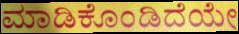
ಮಾಡಿಕೊಂಡಿದೆಯೇ